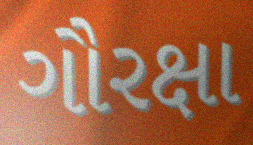
ગૌરક્ષા